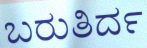
ಬರುತಿರ್ದ